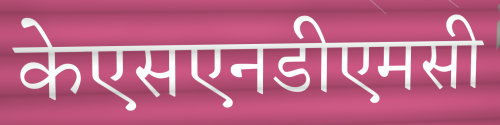
केएसएनडीएमसी